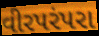
વીરપરંપરા